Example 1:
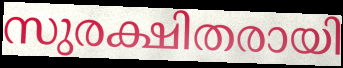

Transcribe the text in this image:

സുരക്ഷിതരായി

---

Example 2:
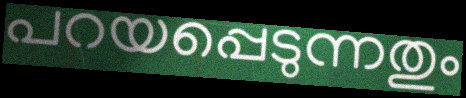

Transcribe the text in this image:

പറയപ്പെടുന്നതും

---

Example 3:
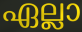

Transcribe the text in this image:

ഏല്ലാ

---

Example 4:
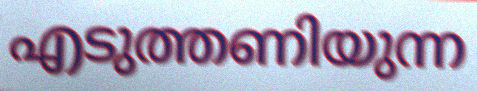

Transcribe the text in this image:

എടുത്തണിയുന്ന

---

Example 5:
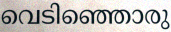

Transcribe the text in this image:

വെടിഞ്ഞൊരു